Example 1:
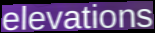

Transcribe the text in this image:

elevations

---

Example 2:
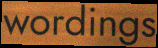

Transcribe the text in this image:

wordings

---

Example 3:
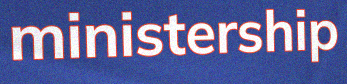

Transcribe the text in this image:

ministership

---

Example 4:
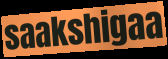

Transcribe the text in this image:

saakshigaa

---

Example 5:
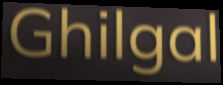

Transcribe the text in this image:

Ghilgal